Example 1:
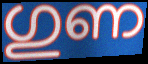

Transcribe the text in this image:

ഗുണ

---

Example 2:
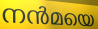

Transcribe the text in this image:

നൻമയെ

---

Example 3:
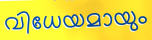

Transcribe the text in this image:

വിധേയമായും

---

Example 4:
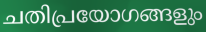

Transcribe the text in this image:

ചതിപ്രയോഗങ്ങളും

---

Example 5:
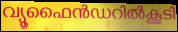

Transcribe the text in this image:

വ്യൂഫൈൻഡറിൽകൂടി